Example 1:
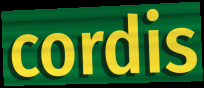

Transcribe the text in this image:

cordis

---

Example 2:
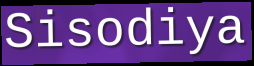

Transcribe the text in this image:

Sisodiya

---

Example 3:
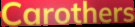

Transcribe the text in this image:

Carothers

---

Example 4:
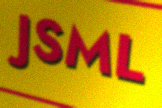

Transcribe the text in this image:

JSML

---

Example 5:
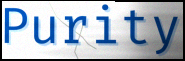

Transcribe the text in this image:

Purity